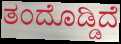
ತಂದೊಡ್ಡಿದೆ